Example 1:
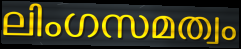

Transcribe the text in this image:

ലിംഗസമത്വം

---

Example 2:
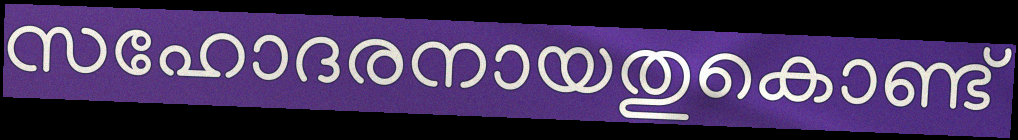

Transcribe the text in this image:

സഹോദരനായതുകൊണ്ട്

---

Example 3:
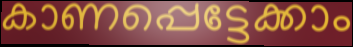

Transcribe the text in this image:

കാണപ്പെട്ടേക്കാം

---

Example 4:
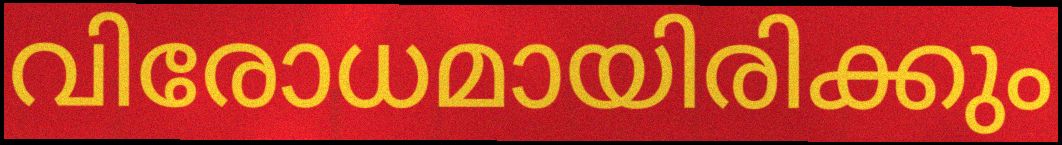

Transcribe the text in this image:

വിരോധമായിരിക്കും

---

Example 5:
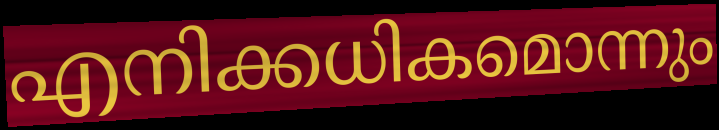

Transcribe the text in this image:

എനിക്കധികമൊന്നും